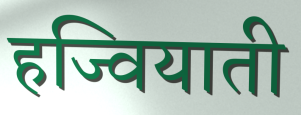
हज्वियाती